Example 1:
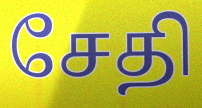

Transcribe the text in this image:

சேதி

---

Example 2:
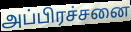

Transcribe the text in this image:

அப்பிரச்சனை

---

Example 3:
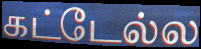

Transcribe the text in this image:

கட்டேல்ல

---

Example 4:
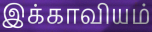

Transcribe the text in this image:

இக்காவியம்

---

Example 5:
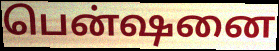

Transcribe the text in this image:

பென்ஷனை